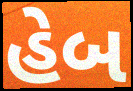
હેબ